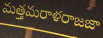
మత్తమరాళరాజజా